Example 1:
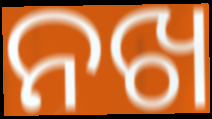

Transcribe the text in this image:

ନଖ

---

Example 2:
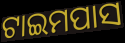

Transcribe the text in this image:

ଟାଇମପାସ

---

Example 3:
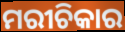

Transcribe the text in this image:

ମରୀଚିକାର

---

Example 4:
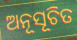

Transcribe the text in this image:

ଅନୂସୂଚିତ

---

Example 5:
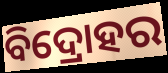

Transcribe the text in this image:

ବିଦ୍ରୋହର